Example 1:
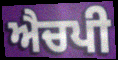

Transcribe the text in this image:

ਐਚਪੀ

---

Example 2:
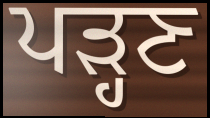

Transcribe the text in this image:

ਪੜ੍ਹਣ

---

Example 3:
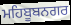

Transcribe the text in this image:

ਮਹਿਬੂਬਨਗਰ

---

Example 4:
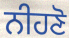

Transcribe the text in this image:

ਨੀਹਣੋ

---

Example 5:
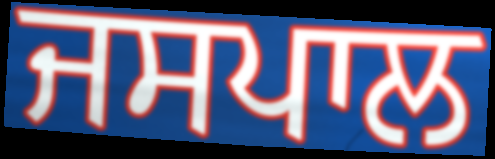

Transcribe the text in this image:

ਜਸਪਾਲ